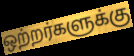
ஒற்றர்களுக்கு